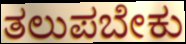
ತಲುಪಬೇಕು